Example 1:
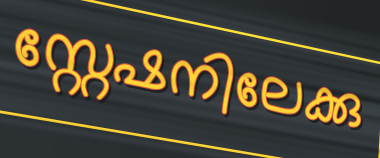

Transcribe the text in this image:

സ്റ്റേഷനിലേക്കു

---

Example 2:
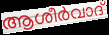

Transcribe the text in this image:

ആശീർവാദ്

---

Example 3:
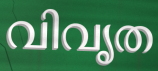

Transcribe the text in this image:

വിവൃത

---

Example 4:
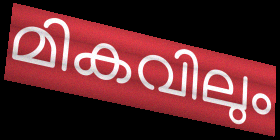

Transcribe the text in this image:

മികവിലും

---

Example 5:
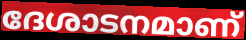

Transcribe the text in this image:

ദേശാടനമാണ്